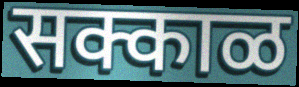
सक्काळ